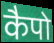
कैपो